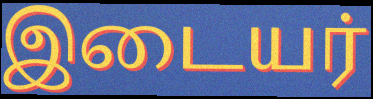
இடையர்